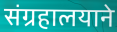
संग्रहालयाने